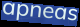
apneas